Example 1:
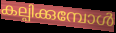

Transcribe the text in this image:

കല്പിക്കുമ്പോൾ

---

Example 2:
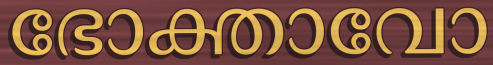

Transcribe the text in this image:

ഭോക്താവോ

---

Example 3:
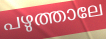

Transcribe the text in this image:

പഴുത്താലേ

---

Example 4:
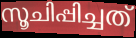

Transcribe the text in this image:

സൂചിപ്പിച്ചത്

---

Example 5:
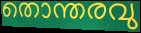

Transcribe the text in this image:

തൊന്തരവു